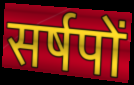
सर्षपों